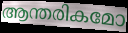
ആന്തരികമോ